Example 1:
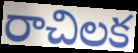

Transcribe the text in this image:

రాచిలక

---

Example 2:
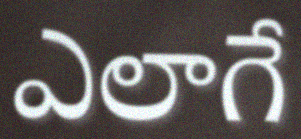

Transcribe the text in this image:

ఎలాగే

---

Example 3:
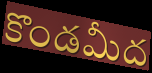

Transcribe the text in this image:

కొండమీద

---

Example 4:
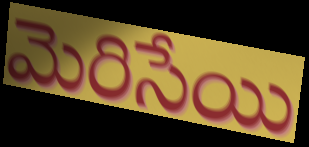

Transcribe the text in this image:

మెరిసేయి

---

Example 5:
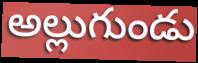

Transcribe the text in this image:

అల్లుగుండు